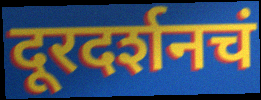
दूरदर्शनचं